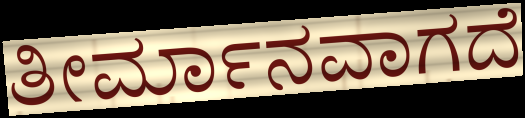
ತೀರ್ಮಾನವಾಗದೆ